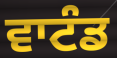
ਵਾਟੰਡ